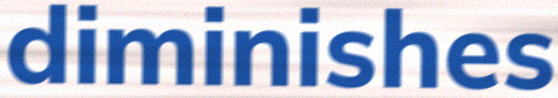
diminishes